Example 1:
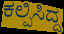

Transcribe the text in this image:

ಕಲ್ಪಿಸಿದ್ದ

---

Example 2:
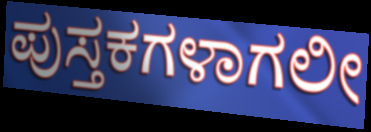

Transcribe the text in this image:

ಪುಸ್ತಕಗಳಾಗಲೀ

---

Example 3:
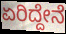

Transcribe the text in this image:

ಏರಿದ್ದೇನೆ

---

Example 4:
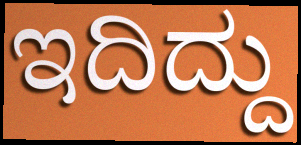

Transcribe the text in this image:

ಇದಿದ್ದು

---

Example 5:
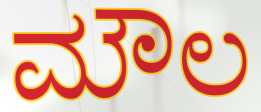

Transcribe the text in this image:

ಮೌಲ